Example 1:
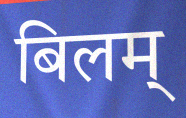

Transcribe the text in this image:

बिलम्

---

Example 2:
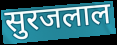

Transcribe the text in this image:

सुरजलाल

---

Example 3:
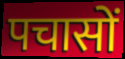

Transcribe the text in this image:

पचासों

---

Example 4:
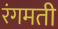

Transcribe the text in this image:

रंगमती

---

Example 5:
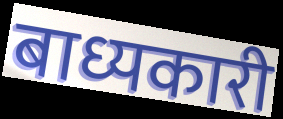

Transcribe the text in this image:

बाध्यकारी